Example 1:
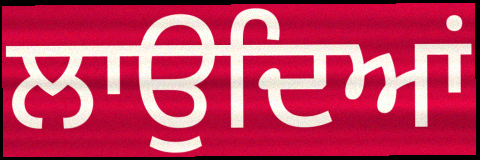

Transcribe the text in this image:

ਲਾਉਦਿਆਂ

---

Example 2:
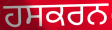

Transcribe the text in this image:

ਹਸਕਰਨ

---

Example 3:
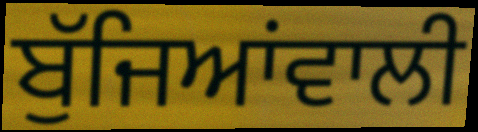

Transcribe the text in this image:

ਬੁੱਜਿਆਂਵਾਲੀ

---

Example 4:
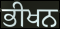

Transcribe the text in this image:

ਭੀਖਨ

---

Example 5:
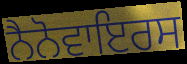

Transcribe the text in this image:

ਨੈਨੋਵਾਇਰਸ